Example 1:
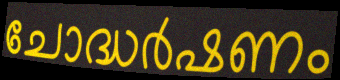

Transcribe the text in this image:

ചോദ്ധർഷണം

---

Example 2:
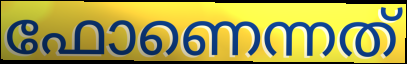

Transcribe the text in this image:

ഫോണെന്നത്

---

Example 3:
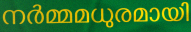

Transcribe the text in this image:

നർമ്മമധുരമായി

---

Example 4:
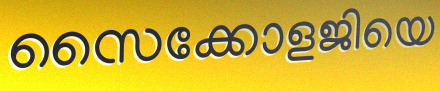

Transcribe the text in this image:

സൈക്കോളജിയെ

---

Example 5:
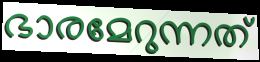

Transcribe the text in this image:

ഭാരമേറുന്നത്